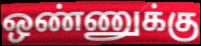
ஒண்ணுக்கு